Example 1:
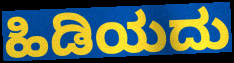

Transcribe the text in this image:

ಹಿಡಿಯದು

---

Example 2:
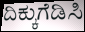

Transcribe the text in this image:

ದಿಕ್ಕುಗೆಡಿಸಿ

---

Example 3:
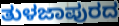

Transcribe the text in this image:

ತುಳಜಾಪುರದ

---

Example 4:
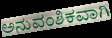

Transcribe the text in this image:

ಅನುವಂಶಿಕವಾಗಿ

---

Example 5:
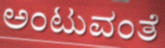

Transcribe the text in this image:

ಅಂಟುವಂತೆ